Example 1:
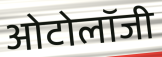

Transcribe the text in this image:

ओटोलॉजी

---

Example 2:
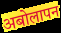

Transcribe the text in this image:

अबोलापन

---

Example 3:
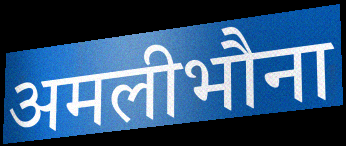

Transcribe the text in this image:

अमलीभौना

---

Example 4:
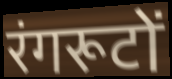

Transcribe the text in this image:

रंगरूटों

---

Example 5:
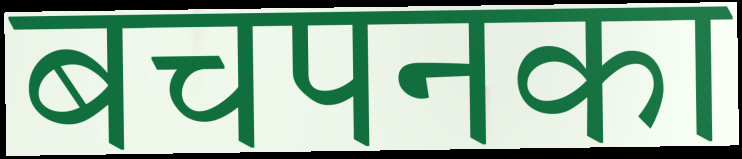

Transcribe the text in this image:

बचपनका